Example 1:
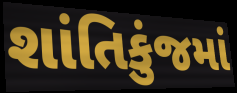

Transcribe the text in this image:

શાંતિકુંજમાં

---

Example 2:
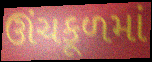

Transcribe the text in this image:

ઊંચકૂળમાં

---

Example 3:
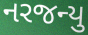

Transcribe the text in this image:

નરજન્યુ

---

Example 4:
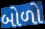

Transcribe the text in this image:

બોળો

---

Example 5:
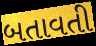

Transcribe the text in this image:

બતાવતી